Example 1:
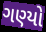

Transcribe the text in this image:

ગણ્યો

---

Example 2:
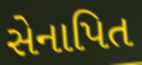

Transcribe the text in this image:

સેનાપિત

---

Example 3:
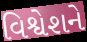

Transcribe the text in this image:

વિશ્વેશને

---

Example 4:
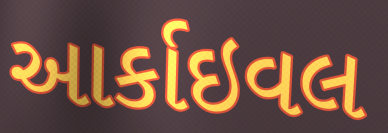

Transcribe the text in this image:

આર્કાઇવલ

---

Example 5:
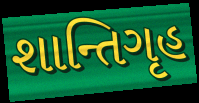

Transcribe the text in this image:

શાન્તિગૃહ